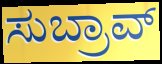
ಸುಬ್ರಾವ್